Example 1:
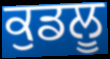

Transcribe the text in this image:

ਕੁਡਲੂ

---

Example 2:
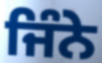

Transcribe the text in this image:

ਜਿੰਨੇ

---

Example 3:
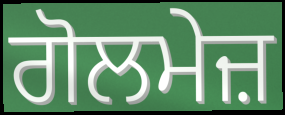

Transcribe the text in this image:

ਗੋਲਮੇਜ਼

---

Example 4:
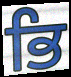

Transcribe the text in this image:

ਭਿ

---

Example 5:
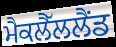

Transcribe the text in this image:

ਮੈਕਲੈੱਲਲੈਂਡ